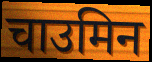
चाउमिन